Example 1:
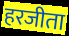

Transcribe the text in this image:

हरजीता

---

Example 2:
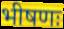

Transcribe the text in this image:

भीषणः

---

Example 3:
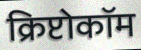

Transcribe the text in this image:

क्रिप्टोकॉम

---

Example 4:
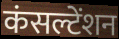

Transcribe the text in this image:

कंसल्टेंशन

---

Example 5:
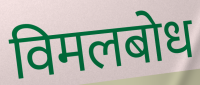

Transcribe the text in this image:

विमलबोध